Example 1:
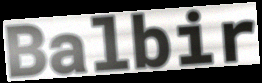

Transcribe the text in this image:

Balbir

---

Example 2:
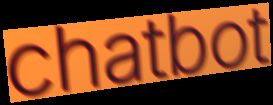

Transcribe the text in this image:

chatbot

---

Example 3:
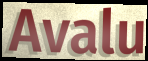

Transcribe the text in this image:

Avalu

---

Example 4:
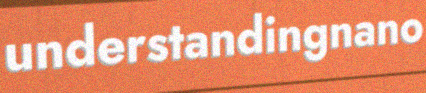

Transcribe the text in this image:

understandingnano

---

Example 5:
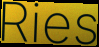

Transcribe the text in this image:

Ries